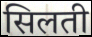
सिलती